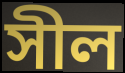
সীল